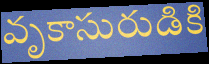
వృకాసురుడికి